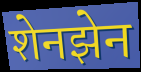
शेनझेन